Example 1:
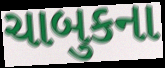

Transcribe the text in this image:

ચાબુકના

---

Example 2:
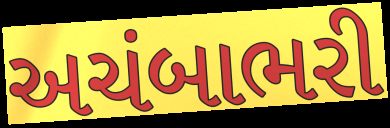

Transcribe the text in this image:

અચંબાભરી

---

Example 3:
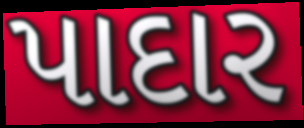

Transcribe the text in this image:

પાદાર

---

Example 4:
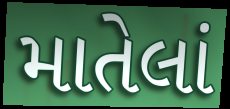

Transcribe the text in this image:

માતેલાં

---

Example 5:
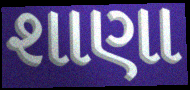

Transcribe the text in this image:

શાણા